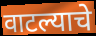
वाटल्याचे